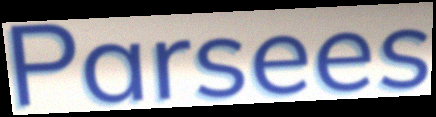
Parsees